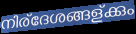
നിര്ദേശങ്ങള്ക്കും